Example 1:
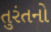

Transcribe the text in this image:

તુરંતનો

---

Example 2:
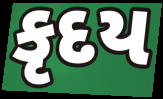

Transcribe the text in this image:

કૃદય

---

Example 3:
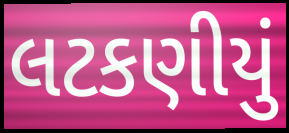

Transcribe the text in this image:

લટકણીયું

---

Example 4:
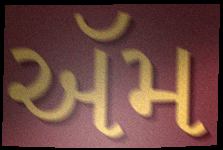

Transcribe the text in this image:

ઍમ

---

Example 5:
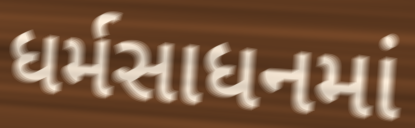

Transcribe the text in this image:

ધર્મસાધનમાં